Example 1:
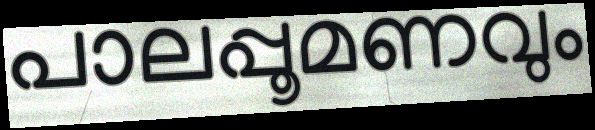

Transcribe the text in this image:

പാലപ്പൂമണവും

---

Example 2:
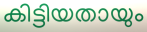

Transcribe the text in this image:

കിട്ടിയതായും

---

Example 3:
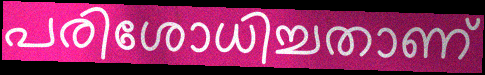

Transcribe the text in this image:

പരിശോധിച്ചതാണ്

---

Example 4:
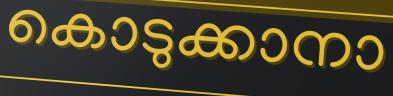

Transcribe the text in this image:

കൊടുക്കാനാ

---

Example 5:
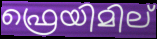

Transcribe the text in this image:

ഫ്രെയിമില്